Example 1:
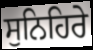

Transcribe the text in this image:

ਸੁਨਿਹਿਰੇ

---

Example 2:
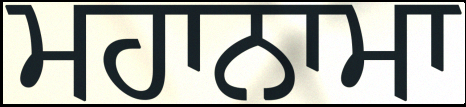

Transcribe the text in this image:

ਮਹਾਨਾਮਾ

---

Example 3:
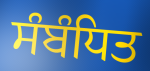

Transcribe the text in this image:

ਸੰਬੰਧਿਤ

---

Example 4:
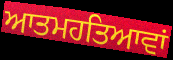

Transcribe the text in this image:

ਆਤਮਹਤਿਆਵਾਂ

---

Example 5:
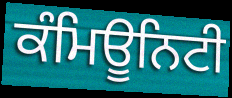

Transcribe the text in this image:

ਕੰਮਿਊਨਿਟੀ